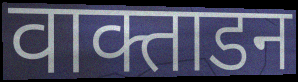
वाक्ताडन